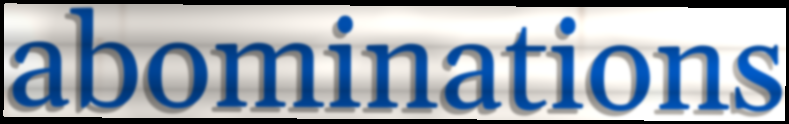
abominations